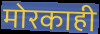
मोरकाही